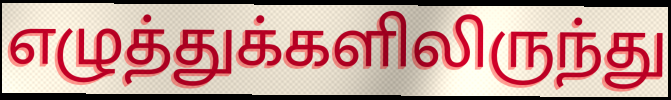
எழுத்துக்களிலிருந்து